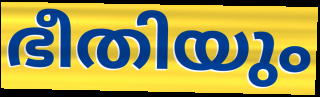
ഭീതിയും